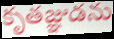
కృతజ్ఞుడను